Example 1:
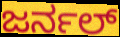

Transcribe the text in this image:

ಜರ್ನಲ್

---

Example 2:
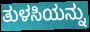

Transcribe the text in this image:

ತುಳಸಿಯನ್ನು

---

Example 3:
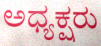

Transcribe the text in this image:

ಅಧ್ಯಕ್ಷರು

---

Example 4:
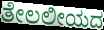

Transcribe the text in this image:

ತೇಲಲೀಯದ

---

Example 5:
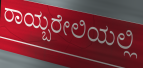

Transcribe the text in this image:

ರಾಯ್ಬರೇಲಿಯಲ್ಲಿ